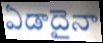
ఏడాదైనా